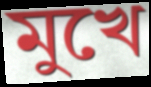
মুখে